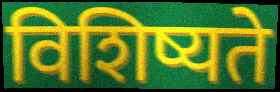
विशिष्यते